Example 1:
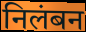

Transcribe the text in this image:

निलंबन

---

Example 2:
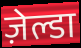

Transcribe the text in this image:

ज़ेल्डा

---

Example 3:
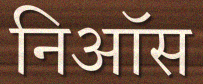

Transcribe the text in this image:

निऑस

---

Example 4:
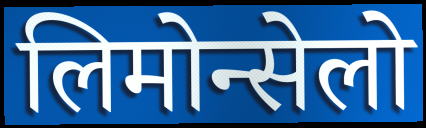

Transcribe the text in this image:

लिमोन्सेलो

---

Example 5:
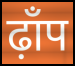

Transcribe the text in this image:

ढ़ाँप